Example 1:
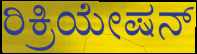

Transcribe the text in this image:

ರಿಕ್ರಿಯೇಷನ್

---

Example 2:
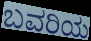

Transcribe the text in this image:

ಬವರಿಯ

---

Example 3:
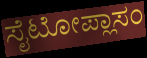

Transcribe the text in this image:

ಸೈಟೋಪ್ಲಾಸಂ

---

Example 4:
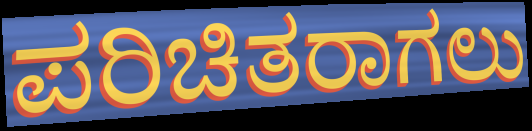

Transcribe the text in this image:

ಪರಿಚಿತರಾಗಲು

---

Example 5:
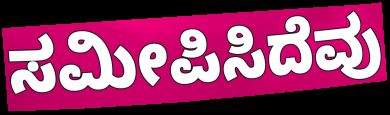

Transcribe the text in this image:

ಸಮೀಪಿಸಿದೆವು